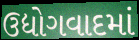
ઉદ્યોગવાદમાં